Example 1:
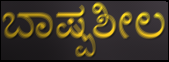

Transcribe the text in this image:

ಬಾಷ್ಪಶೀಲ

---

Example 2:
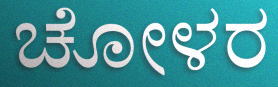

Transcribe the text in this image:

ಚೋಳರ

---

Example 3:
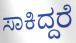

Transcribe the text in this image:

ಸಾಕಿದ್ದರೆ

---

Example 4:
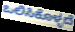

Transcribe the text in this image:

ಒಲಿಸಿಕೊಳ್ಳದೆ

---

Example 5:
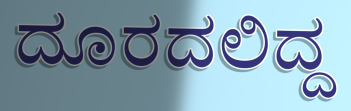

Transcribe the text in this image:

ದೂರದಲಿದ್ದ